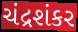
ચંદ્રશંકર